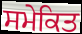
ਸਮੇਕਿਤ